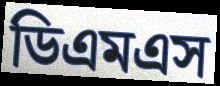
ডিএমএস